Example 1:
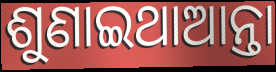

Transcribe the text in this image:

ଶୁଣାଇଥାଆନ୍ତା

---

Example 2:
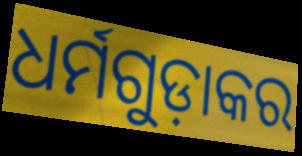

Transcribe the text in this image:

ଧର୍ମଗୁଡ଼ାକର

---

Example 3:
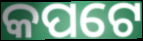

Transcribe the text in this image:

କପଟେ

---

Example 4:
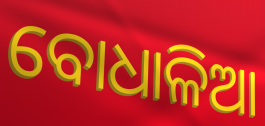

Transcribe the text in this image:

ବୋଧାଳିଆ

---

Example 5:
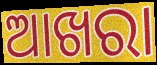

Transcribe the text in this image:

ଆଖରା